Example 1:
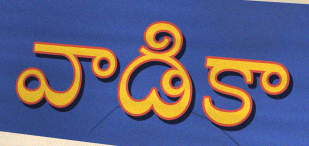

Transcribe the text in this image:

వాడికా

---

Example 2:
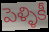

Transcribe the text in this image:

పెళ్ళికీ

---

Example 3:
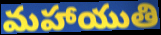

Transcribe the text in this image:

మహాయుతి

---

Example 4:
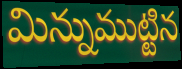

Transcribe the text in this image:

మిన్నుముట్టిన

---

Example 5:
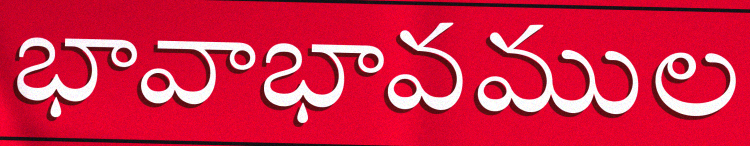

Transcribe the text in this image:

భావాభావముల